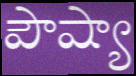
పౌష్యా